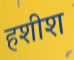
हशीश